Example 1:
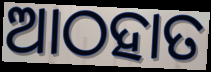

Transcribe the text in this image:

ଆଠହାତ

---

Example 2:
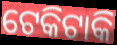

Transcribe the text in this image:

ଟେକିଟାକି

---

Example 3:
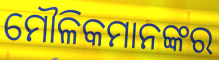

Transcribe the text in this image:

ମୌଳିକମାନଙ୍କର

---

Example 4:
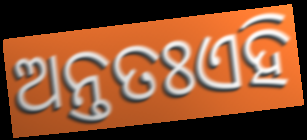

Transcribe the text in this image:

ଅନ୍ତତଃଏହି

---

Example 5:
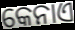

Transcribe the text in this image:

କେନାଏ